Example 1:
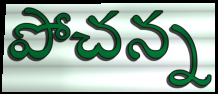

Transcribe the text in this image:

పోచన్న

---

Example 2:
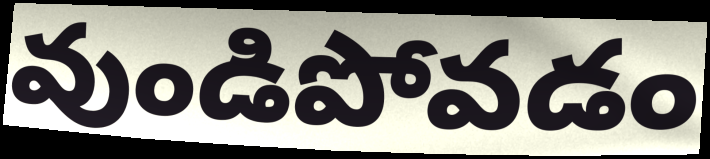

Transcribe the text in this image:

వుండిపోవడం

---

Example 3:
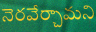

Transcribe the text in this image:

నెరవేర్చామని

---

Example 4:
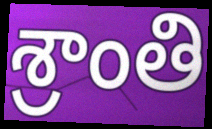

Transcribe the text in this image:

శ్రాంతి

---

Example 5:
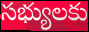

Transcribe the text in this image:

సభ్యులకు